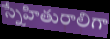
స్నేహితురాలిగా